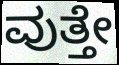
ವುತ್ತೇ